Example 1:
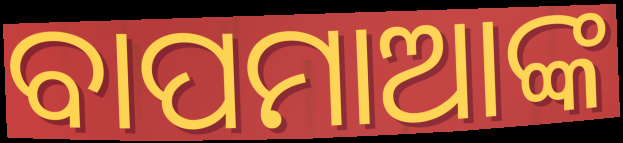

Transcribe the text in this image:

ବାପମାଆଙ୍କ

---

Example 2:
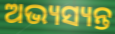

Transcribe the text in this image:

ଅଭ୍ୟସ୍ୟନ୍ତ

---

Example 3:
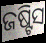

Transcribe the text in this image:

ଜଷ୍ଟିସ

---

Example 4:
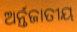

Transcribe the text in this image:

ଅର୍ନ୍ତଜାତୀୟ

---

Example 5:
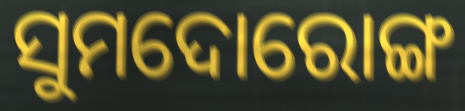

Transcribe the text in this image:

ସୁମଦୋରୋଙ୍ଗ